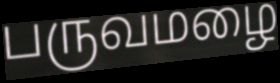
பருவமழை